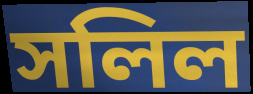
সলিল